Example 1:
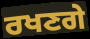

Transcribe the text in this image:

ਰਖਣਗੇ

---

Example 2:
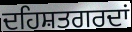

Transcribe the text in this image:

ਦਹਿਸ਼ਤਗਰਦਾਂ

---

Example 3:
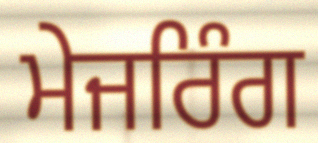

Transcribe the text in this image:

ਮੇਜਰਿੰਗ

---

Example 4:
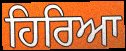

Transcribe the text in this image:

ਹਿਰਿਆ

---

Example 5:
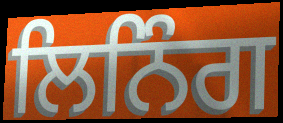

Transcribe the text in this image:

ਲਿਨਿੰਗ